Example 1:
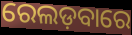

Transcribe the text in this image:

ରେଲଡ଼ବାରେ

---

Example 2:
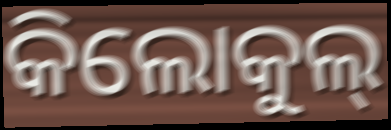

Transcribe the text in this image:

କିଲୋକୁଲ୍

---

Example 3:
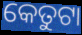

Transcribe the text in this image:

କେତୁଟା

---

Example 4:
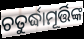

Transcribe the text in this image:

ଚତୁର୍ଦ୍ଧାମୂର୍ତ୍ତିଙ୍କ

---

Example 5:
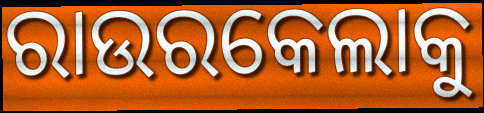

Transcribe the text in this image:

ରାଉରକେଲାକୁ